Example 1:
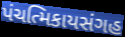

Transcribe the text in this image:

પંચત્મિકાયસંગહ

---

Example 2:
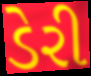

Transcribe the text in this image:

ડેરી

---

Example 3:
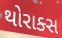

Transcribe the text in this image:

થોરાક્સ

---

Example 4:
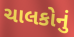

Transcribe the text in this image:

ચાલકોનું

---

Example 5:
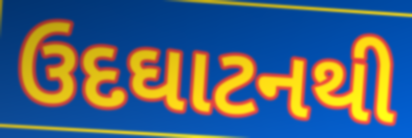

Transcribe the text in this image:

ઉદઘાટનથી